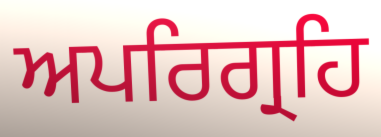
ਅਪਰਿਗ੍ਰਹਿ